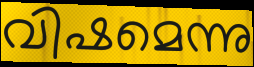
വിഷമെന്നു